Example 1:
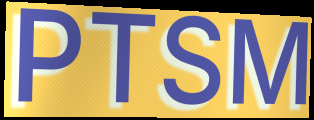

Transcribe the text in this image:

PTSM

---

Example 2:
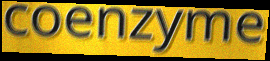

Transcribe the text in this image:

coenzyme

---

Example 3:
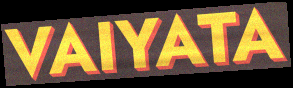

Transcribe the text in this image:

VAIYATA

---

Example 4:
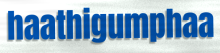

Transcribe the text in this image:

haathigumphaa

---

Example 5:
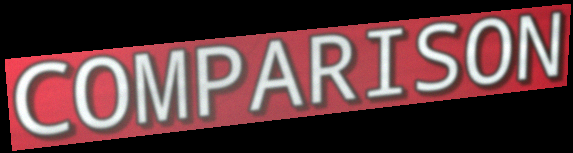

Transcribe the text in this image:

COMPARISON